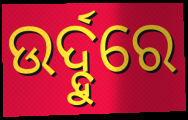
ଉର୍ଦ୍ଦୁରେ